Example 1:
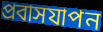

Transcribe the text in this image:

প্রবাসযাপন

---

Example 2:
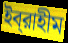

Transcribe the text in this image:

ইব্‌রাহীম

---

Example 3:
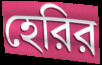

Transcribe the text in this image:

হেরির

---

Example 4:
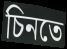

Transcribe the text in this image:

চিনতে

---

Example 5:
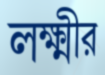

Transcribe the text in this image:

লক্ষ্মীর